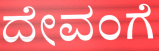
ದೇವಂಗೆ